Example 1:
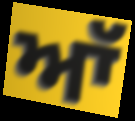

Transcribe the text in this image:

ਆੱ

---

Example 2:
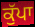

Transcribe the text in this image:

ਕੁੱਪਾ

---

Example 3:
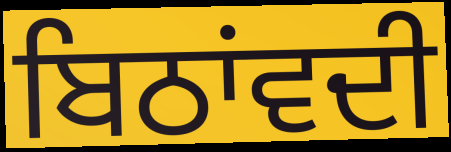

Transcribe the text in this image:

ਬਿਠਾਂਵਦੀ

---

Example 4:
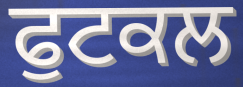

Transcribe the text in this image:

ਫੁਟਕਲ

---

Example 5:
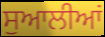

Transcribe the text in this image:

ਸੁਆਲੀਆਂ